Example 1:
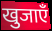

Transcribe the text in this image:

खुजाएँ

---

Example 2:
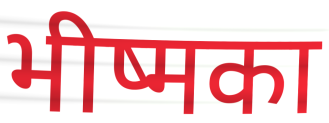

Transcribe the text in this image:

भीष्मका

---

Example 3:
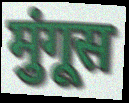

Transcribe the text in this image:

मुंगूस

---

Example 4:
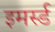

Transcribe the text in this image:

इमर्स्ड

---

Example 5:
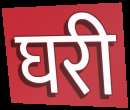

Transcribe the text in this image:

घरी